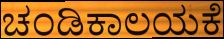
ಚಂಡಿಕಾಲಯಕೆ